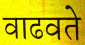
वाढवते